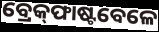
ବ୍ରେକ୍‌ଫାଷ୍ଟବେଳେ